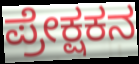
ಪ್ರೇಕ್ಷಕನ